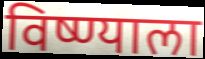
विष्ण्याला